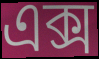
এক্স